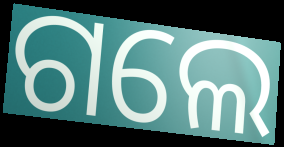
ଗଲେ